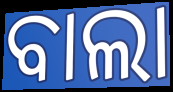
ବାଲା